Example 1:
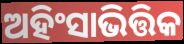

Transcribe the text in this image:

ଅହିଂସାଭିତ୍ତିକ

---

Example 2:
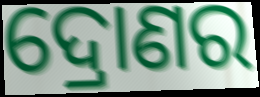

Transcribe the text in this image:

ଦ୍ରୋଣର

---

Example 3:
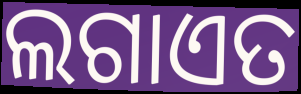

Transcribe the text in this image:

ଲଗାଏତ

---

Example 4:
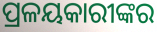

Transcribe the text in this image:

ପ୍ରଳୟକାରୀଙ୍କର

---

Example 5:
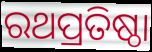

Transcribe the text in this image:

ରଥପ୍ରତିଷ୍ଠା